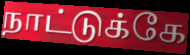
நாட்டுக்கே